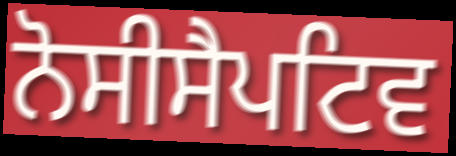
ਨੋਸੀਸੈਪਟਿਵ